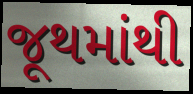
જૂથમાંથી